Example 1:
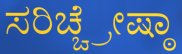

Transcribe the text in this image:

ಸರಿಚ್ಚ್ರೇಷ್ಠಾ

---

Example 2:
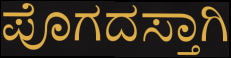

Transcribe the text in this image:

ಪೊಗದಸ್ತಾಗಿ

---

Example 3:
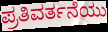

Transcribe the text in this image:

ಪ್ರತಿವರ್ತನೆಯು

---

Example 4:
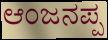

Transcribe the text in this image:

ಆಂಜನಪ್ಪ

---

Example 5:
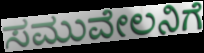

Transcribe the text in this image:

ಸಮುವೇಲನಿಗೆ